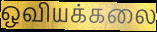
ஒவியக்கலை